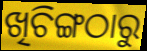
ଖିଚିଙ୍ଗଠାରୁ